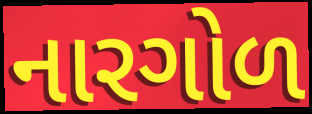
નારગોળ